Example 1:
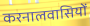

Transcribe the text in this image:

करनालवासियों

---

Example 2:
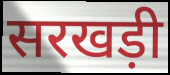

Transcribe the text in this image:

सरखड़ी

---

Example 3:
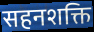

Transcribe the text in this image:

सहनशक्ति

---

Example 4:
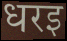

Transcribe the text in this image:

धरइ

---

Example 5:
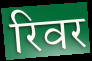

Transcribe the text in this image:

रिवर